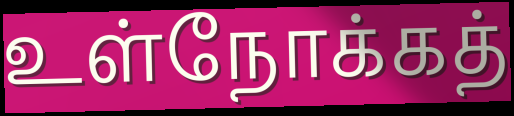
உள்நோக்கத்